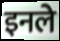
इनले